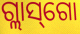
ଗ୍ଲାସ୍‌ଗୋ